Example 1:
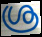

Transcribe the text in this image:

ശ്ര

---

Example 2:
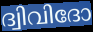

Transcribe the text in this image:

ദ്വിവിദോ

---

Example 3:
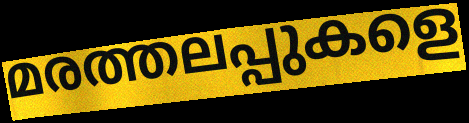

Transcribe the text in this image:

മരത്തലപ്പുകളെ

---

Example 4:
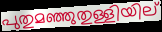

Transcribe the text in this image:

പുതുമഞ്ഞുതുള്ളിയില്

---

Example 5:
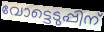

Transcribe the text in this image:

വോട്ടെടുപ്പിന്